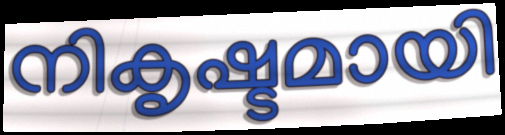
നികൃഷ്ടമായി